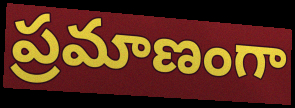
ప్రమాణంగా